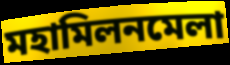
মহামিলনমেলা